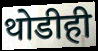
थोडीही